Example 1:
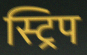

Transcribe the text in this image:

स्ट्रिप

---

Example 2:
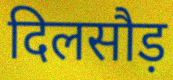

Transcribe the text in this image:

दिलसौड़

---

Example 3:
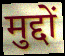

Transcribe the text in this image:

मुद्दों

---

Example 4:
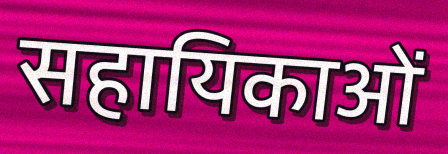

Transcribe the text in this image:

सहायिकाओं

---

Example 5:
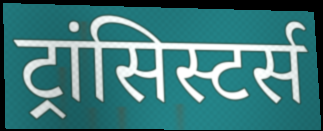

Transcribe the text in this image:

ट्रांसिस्टर्स